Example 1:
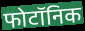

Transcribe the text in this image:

फोटॉनिक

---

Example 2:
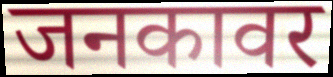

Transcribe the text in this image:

जनकावर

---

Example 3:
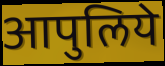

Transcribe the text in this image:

आपुलिये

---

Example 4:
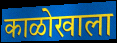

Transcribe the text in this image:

काळोखाला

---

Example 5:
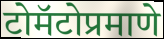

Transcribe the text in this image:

टोमॅटोप्रमाणे